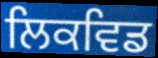
ਲਿਕਵਿਡ